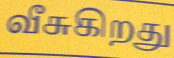
வீசுகிறது